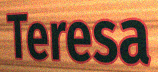
Teresa